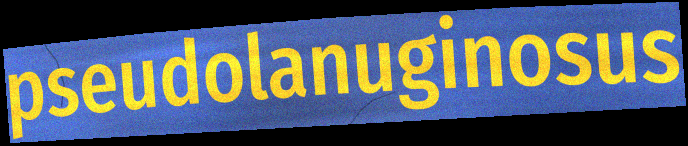
pseudolanuginosus